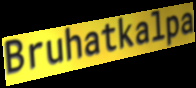
Bruhatkalpa